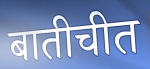
बातीचीत